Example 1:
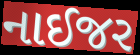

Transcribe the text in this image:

નાઈજર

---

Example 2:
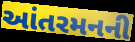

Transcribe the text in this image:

આંતરમનની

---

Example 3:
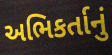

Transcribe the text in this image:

અભિકર્તાનું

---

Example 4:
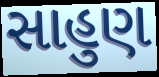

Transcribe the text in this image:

સાહુણ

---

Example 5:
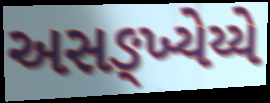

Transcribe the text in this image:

અસઙ્ખ્યેય્યે